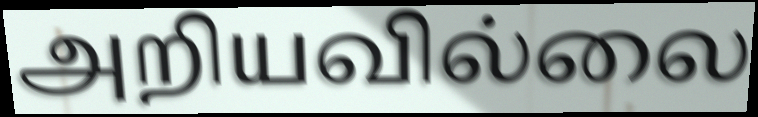
அறியவில்லை